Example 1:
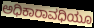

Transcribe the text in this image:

ಅಧಿಕಾರಾವಧಿಯೂ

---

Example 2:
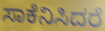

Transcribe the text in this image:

ಸಾಕೆನಿಸಿದರೆ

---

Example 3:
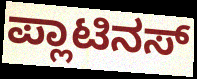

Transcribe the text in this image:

ಪ್ಲಾಟಿನಸ್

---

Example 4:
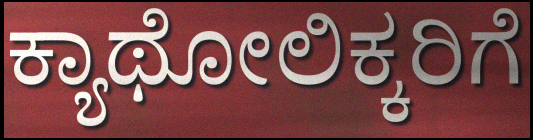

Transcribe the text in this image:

ಕ್ಯಾಥೋಲಿಕ್ಕರಿಗೆ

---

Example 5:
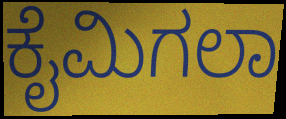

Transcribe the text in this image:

ಕೈಮಿಗಲಾ